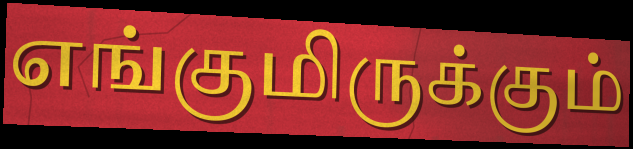
எங்குமிருக்கும்